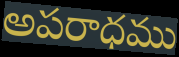
అపరాధము